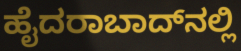
ಹೈದರಾಬಾದ್‌ನಲ್ಲಿ